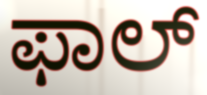
ಫಾಲ್